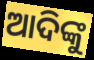
ଆଦିଙ୍କୁ